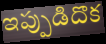
ఇప్పుడిదొక